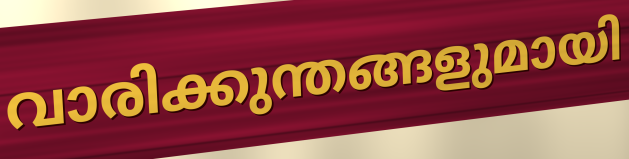
വാരിക്കുന്തങ്ങളുമായി